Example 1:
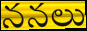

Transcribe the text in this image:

ననలు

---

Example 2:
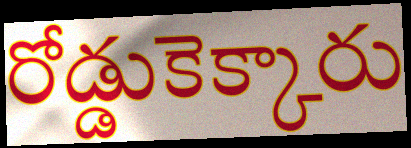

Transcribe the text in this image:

రోడ్డుకెక్కారు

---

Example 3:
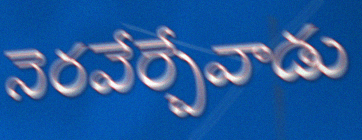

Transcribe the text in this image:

నెరవేర్చేవాడు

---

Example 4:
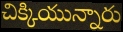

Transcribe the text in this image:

చిక్కియున్నారు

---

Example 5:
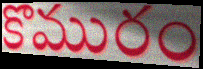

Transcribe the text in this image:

కొమురం